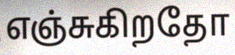
எஞ்சுகிறதோ